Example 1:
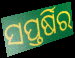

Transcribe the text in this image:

ସପ୍ତର୍ଷିର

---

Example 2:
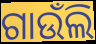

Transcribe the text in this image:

ଗାଉଁଲି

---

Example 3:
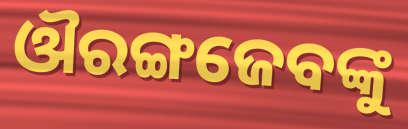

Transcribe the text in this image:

ଔରଙ୍ଗଜେବଙ୍କୁ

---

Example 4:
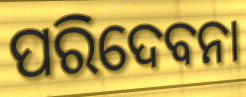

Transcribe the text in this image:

ପରିଦେବନା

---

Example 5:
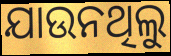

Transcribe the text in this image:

ଯାଉନଥିଲୁ